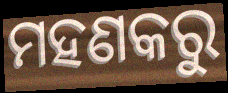
ମହଣକରୁ